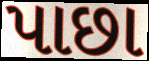
પાછા